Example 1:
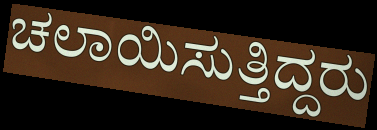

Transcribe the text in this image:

ಚಲಾಯಿಸುತ್ತಿದ್ದರು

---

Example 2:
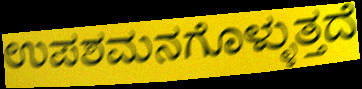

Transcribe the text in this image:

ಉಪಶಮನಗೊಳ್ಳುತ್ತದೆ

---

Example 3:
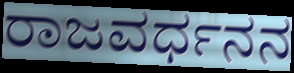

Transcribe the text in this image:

ರಾಜವರ್ಧನನ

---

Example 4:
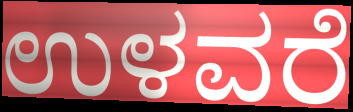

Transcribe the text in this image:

ಉಳವರೆ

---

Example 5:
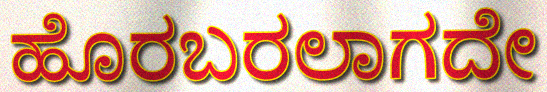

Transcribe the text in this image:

ಹೊರಬರಲಾಗದೇ